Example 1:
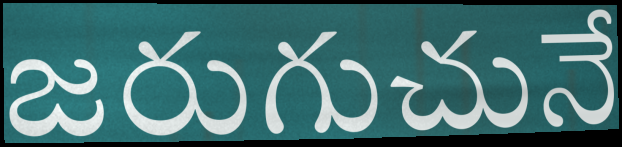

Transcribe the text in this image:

జరుగుచునే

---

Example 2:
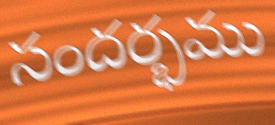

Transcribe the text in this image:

సందర్భము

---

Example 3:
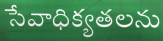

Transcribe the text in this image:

సేవాధిక్యతలను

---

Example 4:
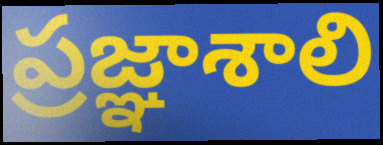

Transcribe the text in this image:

ప్రజ్ఞాశాలి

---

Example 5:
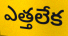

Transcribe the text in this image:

ఎత్తలేక